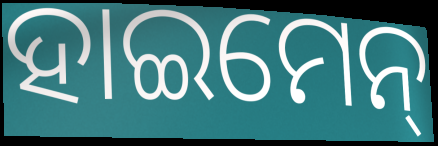
ହାଇମେନ୍